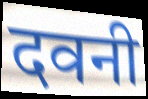
दवनी